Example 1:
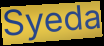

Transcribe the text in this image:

Syeda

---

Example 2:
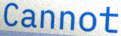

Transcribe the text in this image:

Cannot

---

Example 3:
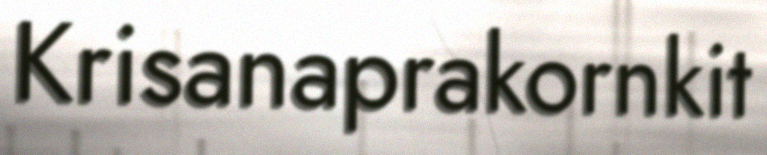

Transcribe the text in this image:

Krisanaprakornkit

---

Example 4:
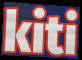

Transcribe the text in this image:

kiti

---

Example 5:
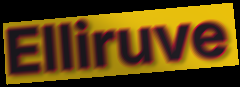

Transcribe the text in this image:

Elliruve